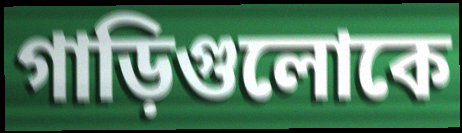
গাড়িগুলোকে